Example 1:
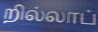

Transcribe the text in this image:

றில்லாப்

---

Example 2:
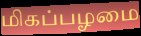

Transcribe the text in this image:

மிகப்பழமை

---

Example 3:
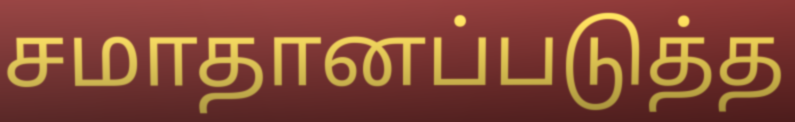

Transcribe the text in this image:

சமாதானப்படுத்த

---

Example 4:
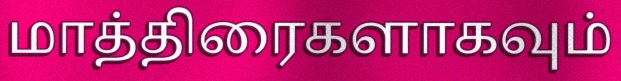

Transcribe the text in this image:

மாத்திரைகளாகவும்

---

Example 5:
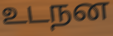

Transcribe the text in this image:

உடநன